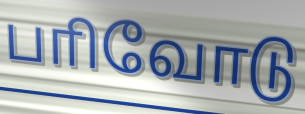
பரிவோடு